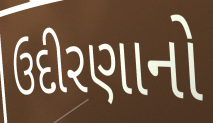
ઉદીરણાનો